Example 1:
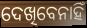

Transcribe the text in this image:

ଦେଖିବେନାହିଁ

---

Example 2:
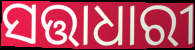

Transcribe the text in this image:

ସତ୍ତାଧାରୀ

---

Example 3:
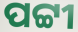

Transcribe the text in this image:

ପଟ୍ଟୀ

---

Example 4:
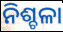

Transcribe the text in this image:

ନିଶ୍ଚଳା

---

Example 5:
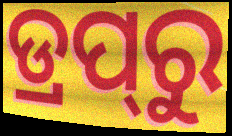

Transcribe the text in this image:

ଡ୍ରପ୍‍ରୁ